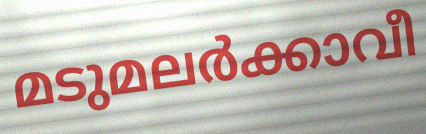
മടുമലർക്കാവീ